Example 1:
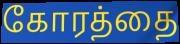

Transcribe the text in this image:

கோரத்தை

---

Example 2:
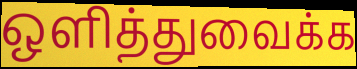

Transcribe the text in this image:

ஒளித்துவைக்க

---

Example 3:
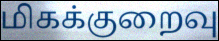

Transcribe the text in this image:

மிகக்குறைவு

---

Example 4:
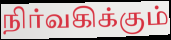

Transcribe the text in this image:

நிர்வகிக்கும்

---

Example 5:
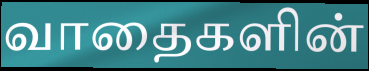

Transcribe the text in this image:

வாதைகளின்